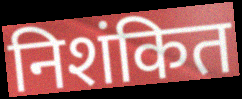
निशंकित